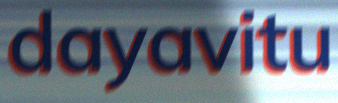
dayavitu